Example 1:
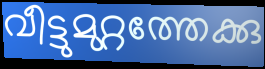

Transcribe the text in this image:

വീട്ടുമുറ്റത്തേക്കു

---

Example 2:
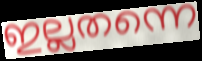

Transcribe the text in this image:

ഇല്ലതന്നെ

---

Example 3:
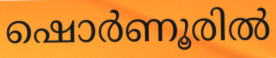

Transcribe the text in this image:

ഷൊർണൂരിൽ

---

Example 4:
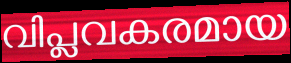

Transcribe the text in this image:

വിപ്ലവകരമായ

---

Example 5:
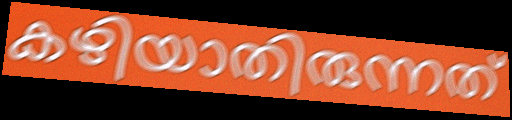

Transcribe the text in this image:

കഴിയാതിരുന്നത്